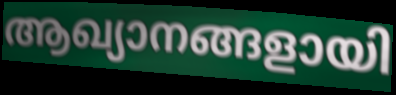
ആഖ്യാനങ്ങളായി